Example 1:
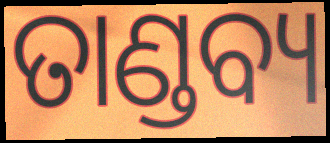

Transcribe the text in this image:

ତାଣ୍ଡବ୍ୟ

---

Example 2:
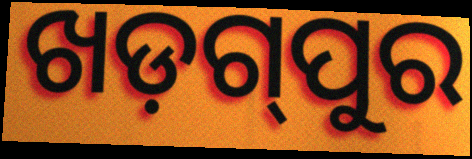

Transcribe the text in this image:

ଖଡ଼ଗ୍‌ପୁର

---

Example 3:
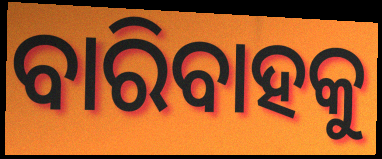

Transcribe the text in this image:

ବାରିବାହକୁ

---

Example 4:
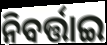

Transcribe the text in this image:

ନିବର୍ତ୍ତାଇ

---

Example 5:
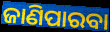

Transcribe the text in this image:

ଜାଣିପାରବା